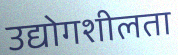
उद्योगशीलता